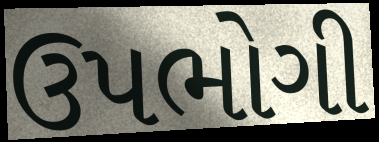
ઉપભોગી